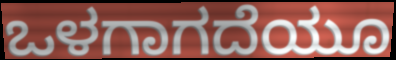
ಒಳಗಾಗದೆಯೂ